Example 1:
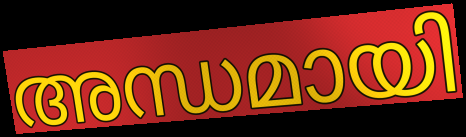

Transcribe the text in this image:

അന്ധമായി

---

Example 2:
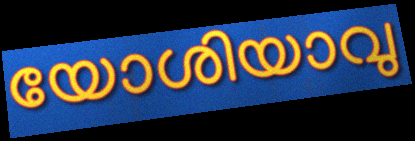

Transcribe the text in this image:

യോശിയാവു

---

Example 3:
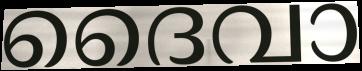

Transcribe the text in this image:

ദൈവാ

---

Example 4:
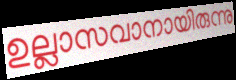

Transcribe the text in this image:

ഉല്ലാസവാനായിരുന്നു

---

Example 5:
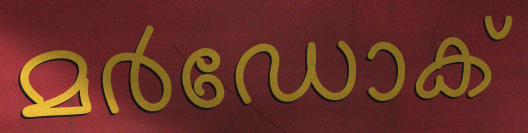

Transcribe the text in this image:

മർഡോക്